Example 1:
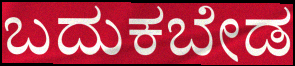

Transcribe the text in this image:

ಬದುಕಬೇಡ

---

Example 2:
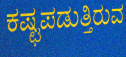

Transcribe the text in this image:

ಕಷ್ಟಪಡುತ್ತಿರುವ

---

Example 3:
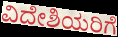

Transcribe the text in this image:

ವಿದೇಶಿಯರಿಗೆ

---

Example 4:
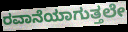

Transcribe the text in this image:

ರವಾನೆಯಾಗುತ್ತಲೇ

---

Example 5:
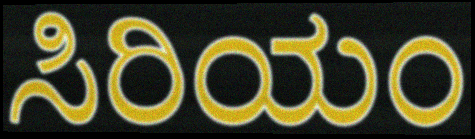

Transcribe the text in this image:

ಸಿರಿಯಂ